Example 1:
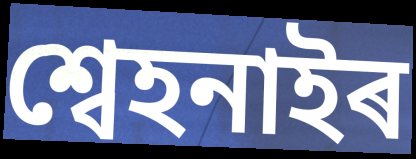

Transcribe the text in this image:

শ্বেহনাইৰ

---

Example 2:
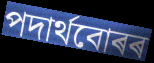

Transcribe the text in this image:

পদাৰ্থবোৰৰ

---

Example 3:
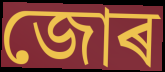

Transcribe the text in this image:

জোৰ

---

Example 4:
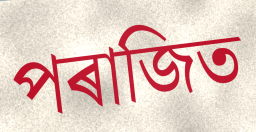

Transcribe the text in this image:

পৰাজিত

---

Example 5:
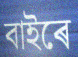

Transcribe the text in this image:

বাইৰে